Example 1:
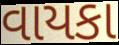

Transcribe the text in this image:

વાયકા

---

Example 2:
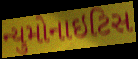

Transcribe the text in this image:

ન્યુમોનાઇટિસ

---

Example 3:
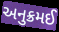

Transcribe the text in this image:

અનુક્રમઈ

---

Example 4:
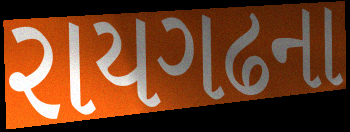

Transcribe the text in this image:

રાયગઢના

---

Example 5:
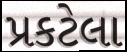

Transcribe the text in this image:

પ્રકટેલા